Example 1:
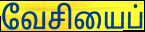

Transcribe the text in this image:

வேசியைப்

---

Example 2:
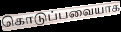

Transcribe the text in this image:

கொடுப்பவையாக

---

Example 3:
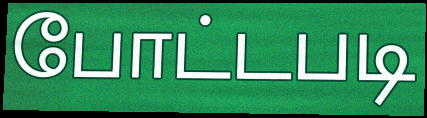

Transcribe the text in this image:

போட்டபடி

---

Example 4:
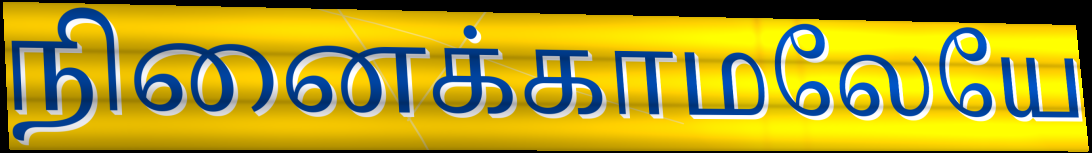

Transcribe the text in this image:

நினைக்காமலேயே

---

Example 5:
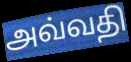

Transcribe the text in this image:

அவ்வதி